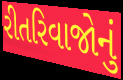
રીતરિવાજોનું